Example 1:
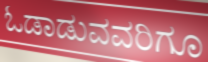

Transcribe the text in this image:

ಓಡಾಡುವವರಿಗೂ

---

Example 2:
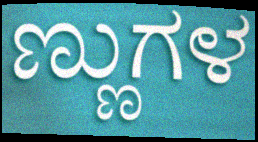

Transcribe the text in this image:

ಣ್ಣುಗಳ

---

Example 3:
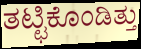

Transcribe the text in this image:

ತಟ್ಟಿಕೊಂಡಿತ್ತು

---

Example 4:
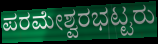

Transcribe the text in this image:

ಪರಮೇಶ್ವರಭಟ್ಟರು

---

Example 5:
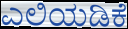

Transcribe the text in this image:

ಎಲಿಯಡಿಕೆ